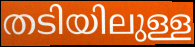
തടിയിലുള്ള